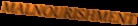
MALNOURISHMENT